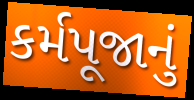
કર્મપૂજાનું